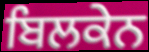
ਬਿਲਕੇਨ